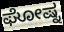
ಘೋಷ್ನ